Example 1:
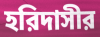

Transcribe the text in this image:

হরিদাসীর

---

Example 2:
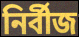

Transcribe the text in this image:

নির্বীজ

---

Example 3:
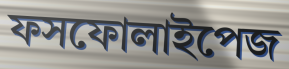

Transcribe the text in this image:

ফসফোলাইপেজ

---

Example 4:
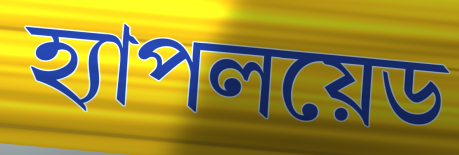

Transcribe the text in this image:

হ্যাপলয়েড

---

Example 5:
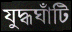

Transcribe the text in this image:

যুদ্ধঘাঁটি